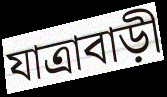
যাত্রাবাড়ী